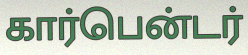
கார்பென்டர்